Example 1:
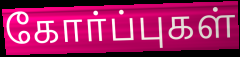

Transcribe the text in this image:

கோர்ப்புகள்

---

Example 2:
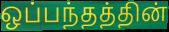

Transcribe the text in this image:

ஒப்பந்தத்தின்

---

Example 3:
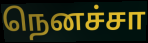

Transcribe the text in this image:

நெனச்சா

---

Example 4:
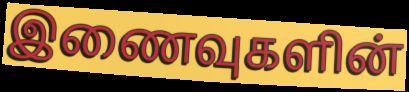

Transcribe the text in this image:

இணைவுகளின்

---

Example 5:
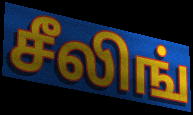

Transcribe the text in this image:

சீலிங்